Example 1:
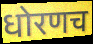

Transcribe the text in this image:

धोरणच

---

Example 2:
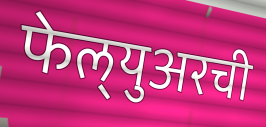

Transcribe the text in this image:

फेल्युअरची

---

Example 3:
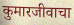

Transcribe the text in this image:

कुमारजीवाचा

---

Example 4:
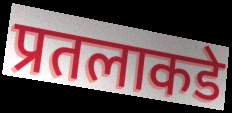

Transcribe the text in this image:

प्रतलाकडे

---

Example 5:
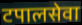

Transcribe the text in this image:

टपालसेवा